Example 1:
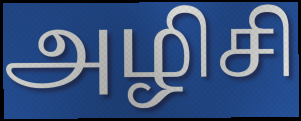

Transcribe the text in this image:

அழிசி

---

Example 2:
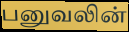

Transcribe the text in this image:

பனுவலின்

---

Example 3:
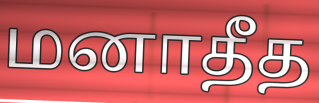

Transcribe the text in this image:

மனாதீத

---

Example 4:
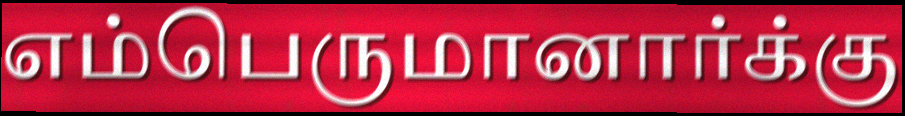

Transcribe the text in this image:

எம்பெருமானார்க்கு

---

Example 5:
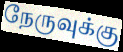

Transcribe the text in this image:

நேருவுக்கு